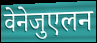
वेनेजुएलन